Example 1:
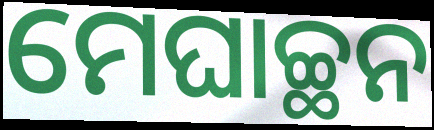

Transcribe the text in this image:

ମେଘାଚ୍ଛନ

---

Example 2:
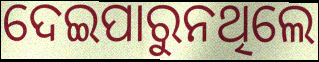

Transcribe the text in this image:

ଦେଇପାରୁନଥିଲେ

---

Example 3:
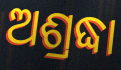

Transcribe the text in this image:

ଅଶ୍ରଦ୍ଧା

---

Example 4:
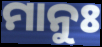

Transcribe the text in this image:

ମାନୁଃ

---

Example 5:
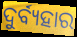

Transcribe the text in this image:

ଦୁର୍ବ୍ୟହାର